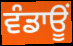
ਵੰਡਾਊਂ